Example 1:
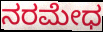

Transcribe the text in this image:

ನರಮೇಧ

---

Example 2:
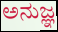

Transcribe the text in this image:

ಅನುಜ್ಞ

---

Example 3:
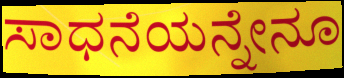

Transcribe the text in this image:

ಸಾಧನೆಯನ್ನೇನೂ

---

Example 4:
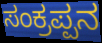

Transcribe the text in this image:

ಸಂಕ್ರಪ್ಪನ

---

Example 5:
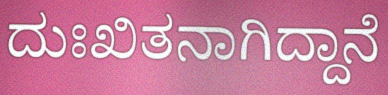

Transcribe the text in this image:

ದುಃಖಿತನಾಗಿದ್ದಾನೆ